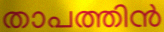
താപത്തിൻ